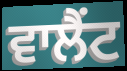
ਵਾਲੈਂਟ